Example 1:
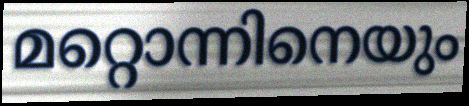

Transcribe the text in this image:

മറ്റൊന്നിനെയും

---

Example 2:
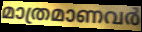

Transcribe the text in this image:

മാത്രമാണവർ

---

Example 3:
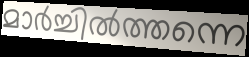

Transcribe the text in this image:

മാർച്ചിൽത്തന്നെ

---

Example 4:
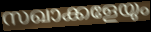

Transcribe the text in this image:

സഖാക്കളേയും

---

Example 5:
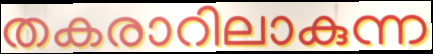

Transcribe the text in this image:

തകരാറിലാകുന്ന